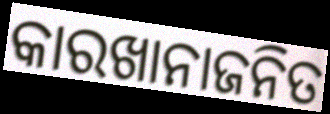
କାରଖାନାଜନିତ